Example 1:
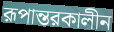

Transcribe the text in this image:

রূপান্তরকালীন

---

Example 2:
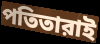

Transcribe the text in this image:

পতিতারাই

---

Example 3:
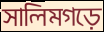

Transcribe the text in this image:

সালিমগড়ে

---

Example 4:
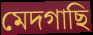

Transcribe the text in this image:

মেদগাছি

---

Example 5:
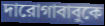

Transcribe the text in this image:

দারোগাবাবুকে